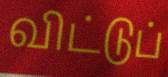
விட்டுப்